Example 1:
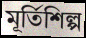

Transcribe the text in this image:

মূর্তিশিল্প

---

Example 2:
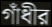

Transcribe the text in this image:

গাঁধীর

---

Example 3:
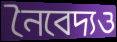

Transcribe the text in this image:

নৈবেদ্যও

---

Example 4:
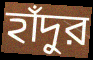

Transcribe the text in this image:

হাঁদুর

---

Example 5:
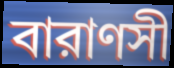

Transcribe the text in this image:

বারাণসী